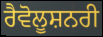
ਰੈਵੋਲੂਸ਼ਨਰੀ